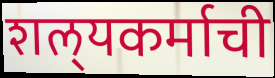
शल्यकर्माची